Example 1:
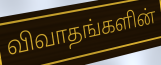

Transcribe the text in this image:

விவாதங்களின்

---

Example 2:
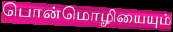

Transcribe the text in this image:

பொன்மொழியையும்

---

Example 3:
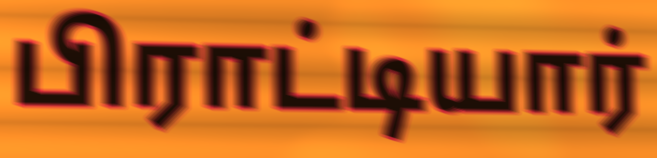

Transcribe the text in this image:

பிராட்டியார்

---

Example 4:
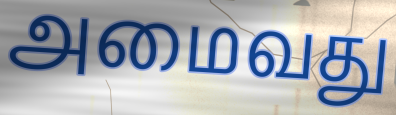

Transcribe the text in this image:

அமைவது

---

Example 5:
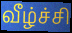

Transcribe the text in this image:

வீழ்ச்சி